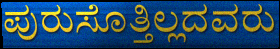
ಪುರುಸೊತ್ತಿಲ್ಲದವರು